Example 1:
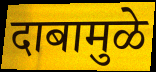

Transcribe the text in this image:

दाबामुळे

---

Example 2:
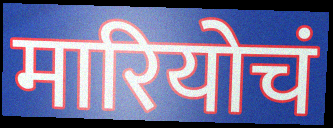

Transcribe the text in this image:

मारियोचं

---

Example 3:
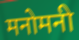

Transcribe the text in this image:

मनोमनी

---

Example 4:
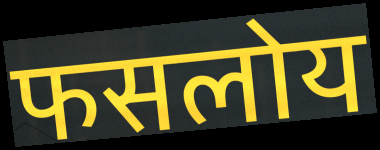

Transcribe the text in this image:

फसलोय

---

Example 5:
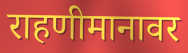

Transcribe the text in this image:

राहणीमानावर